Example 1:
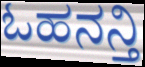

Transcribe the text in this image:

ಓಹನನ್ತಿ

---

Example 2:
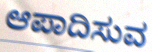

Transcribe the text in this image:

ಆಪಾದಿಸುವ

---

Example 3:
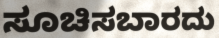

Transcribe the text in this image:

ಸೂಚಿಸಬಾರದು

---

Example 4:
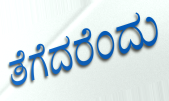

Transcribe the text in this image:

ತೆಗೆದರೆಂದು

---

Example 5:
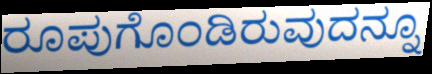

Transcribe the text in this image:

ರೂಪುಗೊಂಡಿರುವುದನ್ನೂ